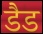
डैड